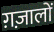
ग़ज़ालों